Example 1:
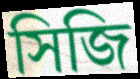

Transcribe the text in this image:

সিজি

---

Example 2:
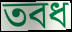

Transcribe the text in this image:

তবধ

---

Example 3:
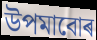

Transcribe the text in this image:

উপমাবোৰ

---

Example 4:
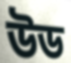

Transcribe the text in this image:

উড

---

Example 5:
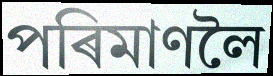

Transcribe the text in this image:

পৰিমাণলৈ